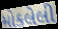
મોકલેલી